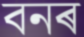
বনৰ